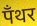
पँथर